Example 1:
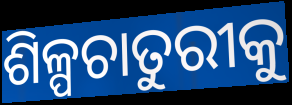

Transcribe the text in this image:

ଶିଳ୍ପଚାତୁରୀକୁ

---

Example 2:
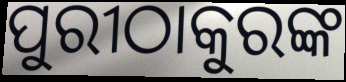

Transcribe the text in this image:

ପୁରୀଠାକୁରଙ୍କ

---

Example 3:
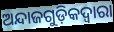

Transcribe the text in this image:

ଅନ୍ଦାଜଗୁଡ଼ିକଦ୍ୱାରା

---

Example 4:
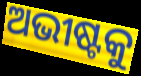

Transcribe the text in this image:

ଅଭୀଷ୍ଟକୁ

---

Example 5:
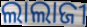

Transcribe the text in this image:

ଲାଲାଜୀ